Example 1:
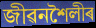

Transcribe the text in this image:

জীৱনশৈলীৰ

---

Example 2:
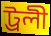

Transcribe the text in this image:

ট্ৰলী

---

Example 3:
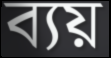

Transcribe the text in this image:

ব্যয়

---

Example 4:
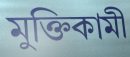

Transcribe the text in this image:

মুক্তিকামী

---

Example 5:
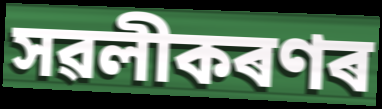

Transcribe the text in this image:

সৱলীকৰণৰ